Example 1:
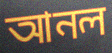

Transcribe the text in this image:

আনল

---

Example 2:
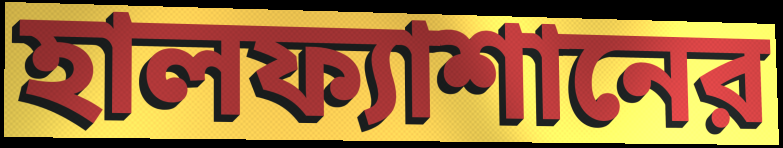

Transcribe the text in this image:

হালফ্যাশানের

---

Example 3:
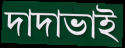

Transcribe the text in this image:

দাদাভাই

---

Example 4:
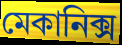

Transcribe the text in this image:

মেকানিক্স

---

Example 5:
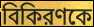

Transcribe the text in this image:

বিকিরণকে